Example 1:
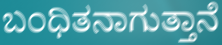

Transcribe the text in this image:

ಬಂಧಿತನಾಗುತ್ತಾನೆ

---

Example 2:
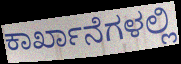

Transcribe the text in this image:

ಕಾರ್ಖಾನೆಗಳಲ್ಲಿ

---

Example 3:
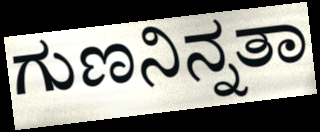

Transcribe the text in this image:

ಗುಣನಿನ್ನತಾ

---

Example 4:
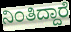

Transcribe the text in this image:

ನಿಂತಿದ್ದಾರೆ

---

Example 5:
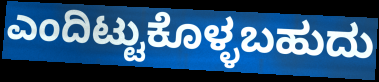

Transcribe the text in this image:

ಎಂದಿಟ್ಟುಕೊಳ್ಳಬಹುದು